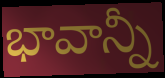
భావాన్నీ